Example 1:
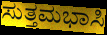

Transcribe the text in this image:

ಸುತ್ತಮಭಾಸಿ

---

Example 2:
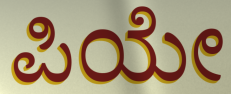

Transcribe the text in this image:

ಪಿಯೇ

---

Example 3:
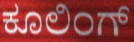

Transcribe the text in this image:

ಕೂಲಿಂಗ್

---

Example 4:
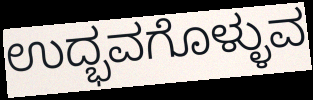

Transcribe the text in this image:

ಉದ್ಭವಗೊಳ್ಳುವ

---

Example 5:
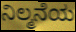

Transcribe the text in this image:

ನಿಲ್ಮನೆಯ